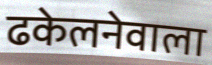
ढकेलनेवाला